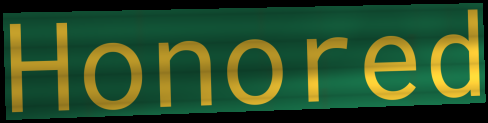
Honored